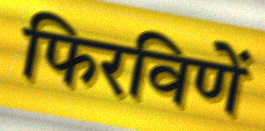
फिरविणें